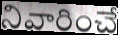
నివారించే